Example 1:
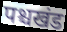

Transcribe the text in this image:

पश्चखंड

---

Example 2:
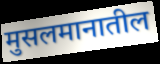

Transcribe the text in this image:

मुसलमानातील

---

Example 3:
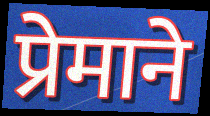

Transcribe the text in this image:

प्रेमाने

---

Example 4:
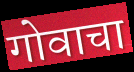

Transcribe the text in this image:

गोवाचा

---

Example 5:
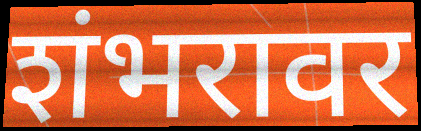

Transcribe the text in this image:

शंभरावर